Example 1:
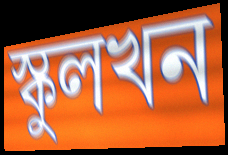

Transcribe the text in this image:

স্কুলখন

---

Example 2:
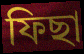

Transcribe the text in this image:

ফিছা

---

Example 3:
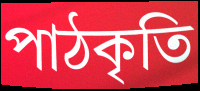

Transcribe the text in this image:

পাঠকৃতি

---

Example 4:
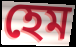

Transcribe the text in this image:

হেম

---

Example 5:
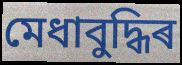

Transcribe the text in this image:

মেধাবুদ্ধিৰ